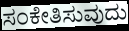
ಸಂಕೇತಿಸುವುದು